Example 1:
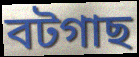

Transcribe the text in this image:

বটগাছ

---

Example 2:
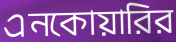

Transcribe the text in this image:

এনকোয়ারির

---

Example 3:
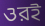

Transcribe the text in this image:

ওরই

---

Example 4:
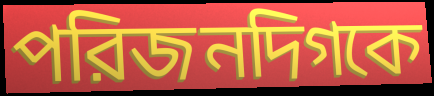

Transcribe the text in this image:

পরিজনদিগকে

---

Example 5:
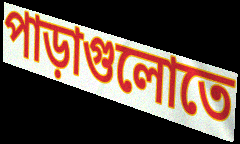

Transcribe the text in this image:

পাড়াগুলোতে